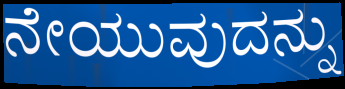
ನೇಯುವುದನ್ನು